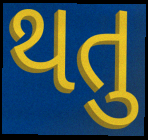
થતુ